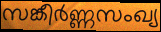
സങ്കീർണ്ണസംഖ്യ